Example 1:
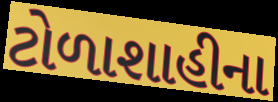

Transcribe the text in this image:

ટોળાશાહીના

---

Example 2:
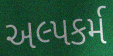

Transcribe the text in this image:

અલ્પકર્મ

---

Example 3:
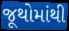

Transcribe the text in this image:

જૂથોમાંથી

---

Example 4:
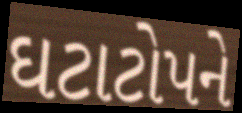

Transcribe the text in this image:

ઘટાટોપને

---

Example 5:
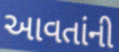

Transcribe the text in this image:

આવતાંની